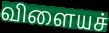
விளையச்